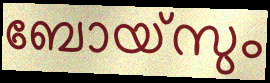
ബോയ്സും